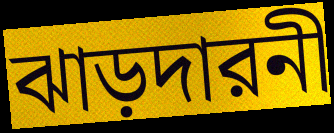
ঝাড়দারনী